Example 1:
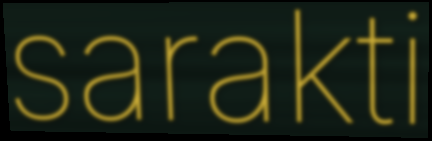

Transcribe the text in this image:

sarakti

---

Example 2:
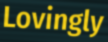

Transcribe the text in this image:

Lovingly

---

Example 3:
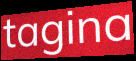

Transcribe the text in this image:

tagina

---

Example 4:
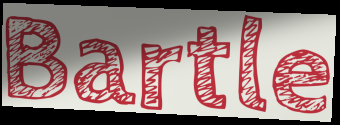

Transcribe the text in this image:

Bartle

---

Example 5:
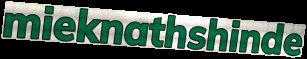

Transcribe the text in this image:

mieknathshinde